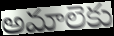
అమాలెకు